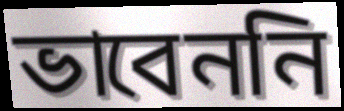
ভাবেননি